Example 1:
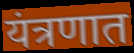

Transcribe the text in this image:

यंत्रणात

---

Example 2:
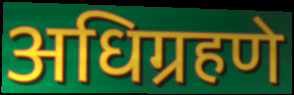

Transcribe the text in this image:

अधिग्रहणे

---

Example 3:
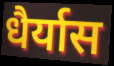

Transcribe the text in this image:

धैर्यास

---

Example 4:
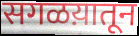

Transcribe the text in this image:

सगळय़ातून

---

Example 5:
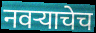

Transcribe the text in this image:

नवऱ्याचेच